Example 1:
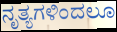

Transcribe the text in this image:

ನೃತ್ಯಗಳಿಂದಲೂ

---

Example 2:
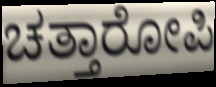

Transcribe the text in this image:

ಚತ್ತಾರೋಪಿ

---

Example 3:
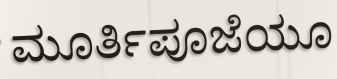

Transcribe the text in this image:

ಮೂರ್ತಿಪೂಜೆಯೂ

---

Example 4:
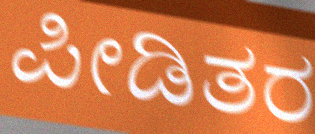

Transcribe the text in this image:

ಪೀಡಿತರ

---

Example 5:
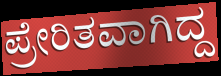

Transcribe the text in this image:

ಪ್ರೇರಿತವಾಗಿದ್ದ